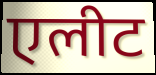
एलीट